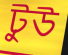
টুউ